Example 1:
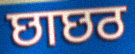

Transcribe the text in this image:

छाछठ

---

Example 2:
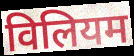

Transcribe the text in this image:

विलियम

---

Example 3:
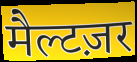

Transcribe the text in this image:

मैल्टज़र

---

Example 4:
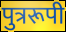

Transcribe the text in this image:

पुत्ररूपी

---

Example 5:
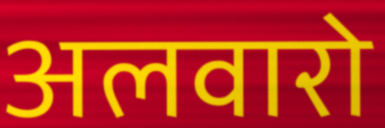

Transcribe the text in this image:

अलवारो